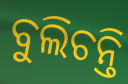
ବୁଲିଚନ୍ତି